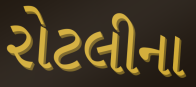
રોટલીના